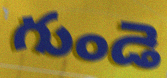
గుండె